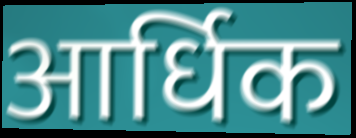
आर्धिक